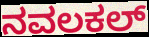
ನವಲಕಲ್